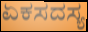
ಏಕಸದಸ್ಯ